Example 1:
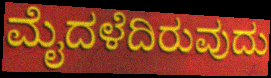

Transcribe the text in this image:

ಮೈದಳೆದಿರುವುದು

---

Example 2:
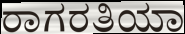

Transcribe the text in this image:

ರಾಗರತಿಯಾ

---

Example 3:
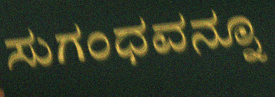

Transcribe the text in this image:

ಸುಗಂಧವನ್ನೂ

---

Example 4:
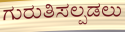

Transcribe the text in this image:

ಗುರುತಿಸಲ್ಪಡಲು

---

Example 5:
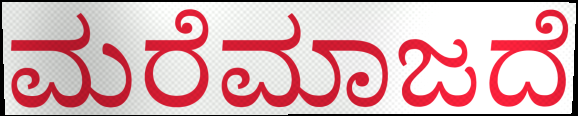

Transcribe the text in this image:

ಮರೆಮಾಜದೆ